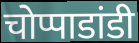
चोप्पाडांडी